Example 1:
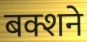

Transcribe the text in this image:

बक्शने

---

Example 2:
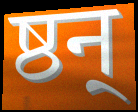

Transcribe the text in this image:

ष्ठन्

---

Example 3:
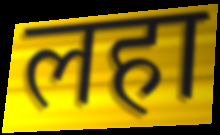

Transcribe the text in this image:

लहा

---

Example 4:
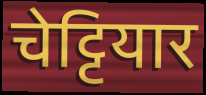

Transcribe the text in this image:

चेट्टियार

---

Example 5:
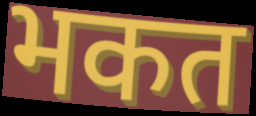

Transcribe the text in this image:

भकत